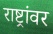
राष्ट्रांवर